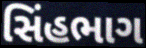
સિંહભાગ